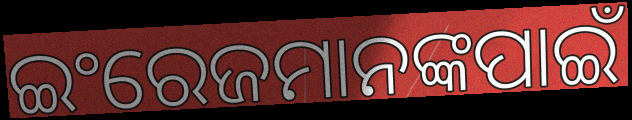
ଇଂରେଜମାନଙ୍କପାଇଁ